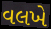
વલખે